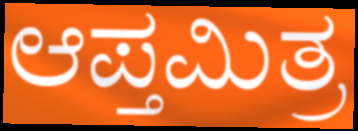
ಆಪ್ತಮಿತ್ರ